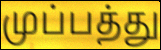
முப்பத்து